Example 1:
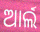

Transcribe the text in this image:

ଆର୍ଲ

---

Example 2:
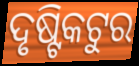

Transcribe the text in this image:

ଦୃଷ୍ଟିକଟୁର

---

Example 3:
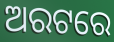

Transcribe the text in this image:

ଅରଟରେ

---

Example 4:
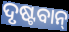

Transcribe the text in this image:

ଦୃଷ୍ଟବାନ୍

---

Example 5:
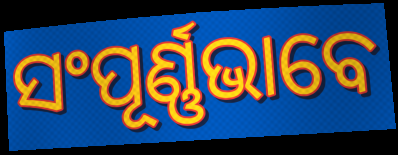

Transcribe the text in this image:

ସଂପୂର୍ଣ୍ଣଭାବେ